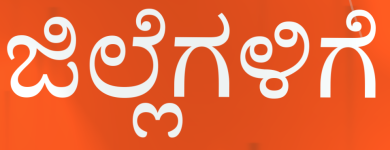
ಜಿಲ್ಲೆಗಳಿಗೆ